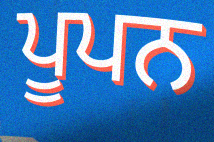
ਪੂਪਨ